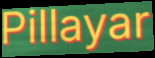
Pillayar